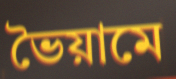
ভৈয়ামে